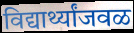
विद्यार्थ्यांजवळ